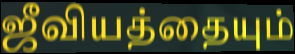
ஜீவியத்தையும்